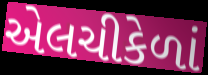
એલચીકેળાં